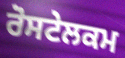
ਰੋਸਟੇਲਕਮ